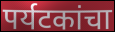
पर्यटकांचा